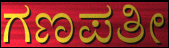
ಗಣಪತೀ